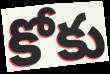
కోకు